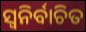
ସ୍ୱନିର୍ବାଚିତ